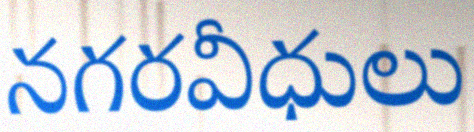
నగరవీధులు